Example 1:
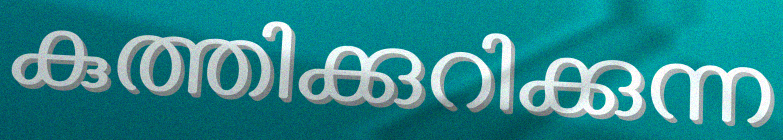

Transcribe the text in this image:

കുത്തിക്കുറിക്കുന്ന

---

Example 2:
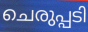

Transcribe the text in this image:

ചെരുപ്പടി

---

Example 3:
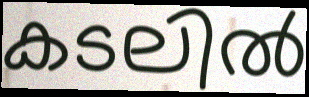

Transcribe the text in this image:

കടലിൽ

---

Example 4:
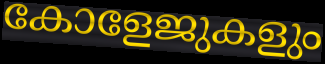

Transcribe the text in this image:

കോളേജുകളും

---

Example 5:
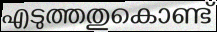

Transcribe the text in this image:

എടുത്തതുകൊണ്ട്